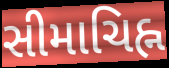
સીમાચિહ્ન